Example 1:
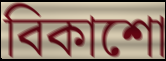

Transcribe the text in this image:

বিকাশো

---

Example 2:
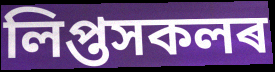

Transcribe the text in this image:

লিপ্তসকলৰ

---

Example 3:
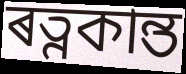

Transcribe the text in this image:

ৰত্নকান্ত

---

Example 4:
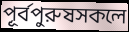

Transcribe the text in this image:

পূৰ্বপুৰুষসকলে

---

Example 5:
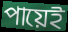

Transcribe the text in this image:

পায়েই